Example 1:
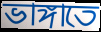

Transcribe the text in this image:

ভাঙ্গাতে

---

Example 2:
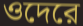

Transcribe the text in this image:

ওদেরে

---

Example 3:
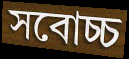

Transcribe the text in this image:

সবোচ্চ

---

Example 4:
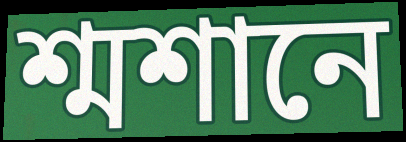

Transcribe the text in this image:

শ্মশানে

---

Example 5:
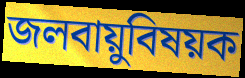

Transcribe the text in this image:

জলবায়ুবিষয়ক